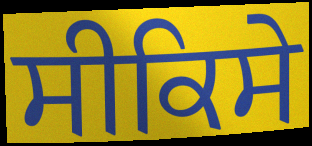
ਸੀਕਿਸੇ